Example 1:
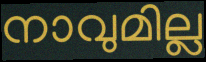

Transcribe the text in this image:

നാവുമില്ല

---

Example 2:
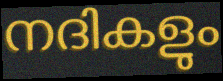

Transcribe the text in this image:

നദികളും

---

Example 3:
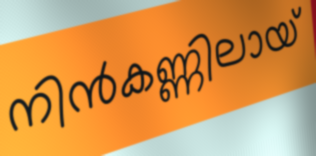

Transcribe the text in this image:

നിൻകണ്ണിലായ്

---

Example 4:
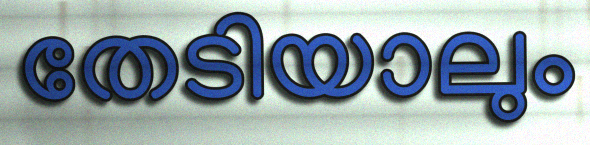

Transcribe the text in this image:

തേടിയാലും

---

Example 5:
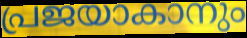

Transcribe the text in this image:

പ്രജയാകാനും